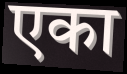
एका